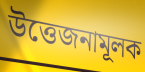
উত্তেজনামূলক